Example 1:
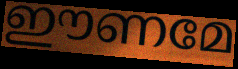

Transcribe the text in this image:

ഈണമേ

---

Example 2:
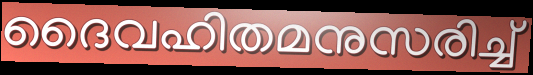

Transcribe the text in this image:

ദൈവഹിതമനുസരിച്ച്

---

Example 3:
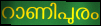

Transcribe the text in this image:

റാണിപുരം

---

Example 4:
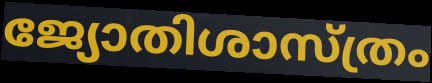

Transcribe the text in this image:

ജ്യോതിശാസ്ത്രം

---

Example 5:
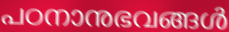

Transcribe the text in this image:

പഠനാനുഭവങ്ങൾ